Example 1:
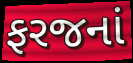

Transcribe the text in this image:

ફરજનાં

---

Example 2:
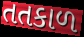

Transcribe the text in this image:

તતકાળ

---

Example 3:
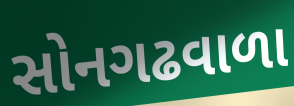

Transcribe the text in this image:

સોનગઢવાળા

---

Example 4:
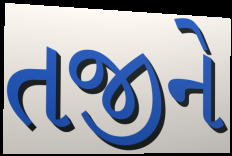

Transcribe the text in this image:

તજીને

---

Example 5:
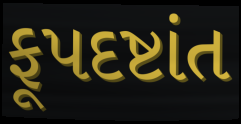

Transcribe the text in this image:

ફૂપદષ્ટાંત